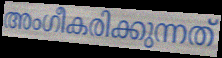
അംഗീകരിക്കുന്നത്